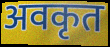
अवकृत